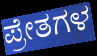
ಪ್ರೇತಗಳ